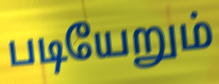
படியேறும்